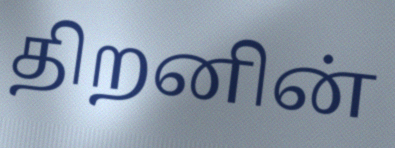
திறனின்